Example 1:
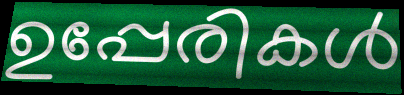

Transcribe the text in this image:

ഉപ്പേരികൾ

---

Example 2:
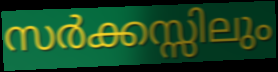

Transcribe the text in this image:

സർക്കസ്സിലും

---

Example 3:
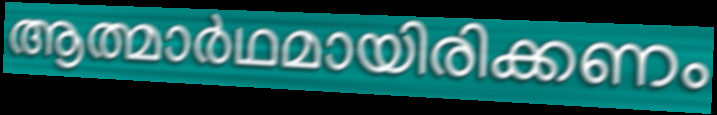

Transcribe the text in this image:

ആത്മാർഥമായിരിക്കണം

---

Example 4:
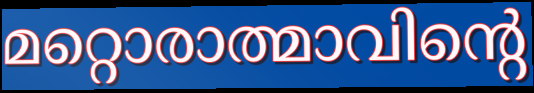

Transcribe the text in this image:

മറ്റൊരാത്മാവിന്റെ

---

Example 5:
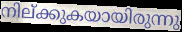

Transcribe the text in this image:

നില്ക്കുകയായിരുന്നു